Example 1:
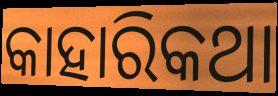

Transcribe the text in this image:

କାହାରିକଥା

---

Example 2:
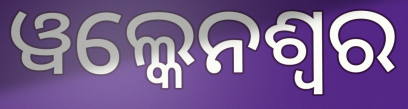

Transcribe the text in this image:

ୱଲ୍କେନଶ୍ୱର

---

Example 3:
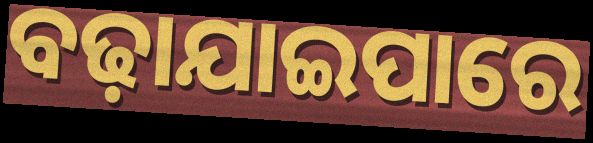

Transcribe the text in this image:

ବଢ଼ାଯାଇପାରେ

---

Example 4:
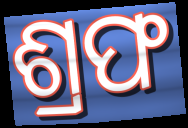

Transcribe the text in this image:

ଶ୍ରଫ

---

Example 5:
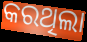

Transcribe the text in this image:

କରଥିଲା